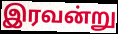
இரவன்று